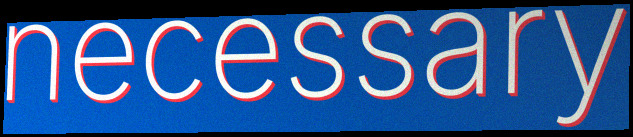
necessary